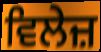
ਵਿਲੇਜ਼